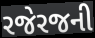
રજેરજની